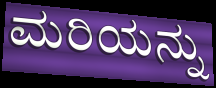
ಮರಿಯನ್ನು